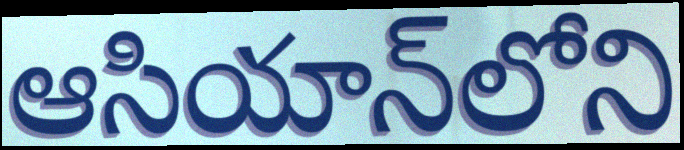
ఆసియాన్‌లోని